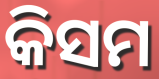
କିସମ